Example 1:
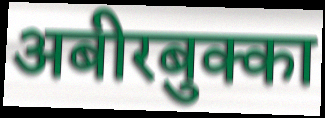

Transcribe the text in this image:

अबीरबुक्का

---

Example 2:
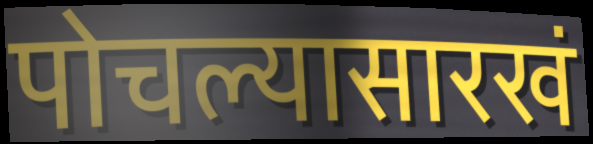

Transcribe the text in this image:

पोचल्यासारखं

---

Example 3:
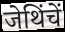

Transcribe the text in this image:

जेथिंचें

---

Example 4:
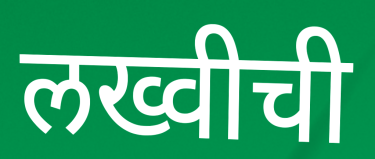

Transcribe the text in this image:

लख्वीची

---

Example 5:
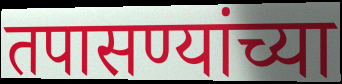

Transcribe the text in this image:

तपासण्यांच्या